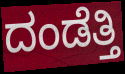
ದಂಡೆತ್ತಿ